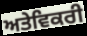
ਅਤੇਵਿਕਰੀ